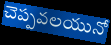
చెప్పవలయునో